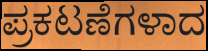
ಪ್ರಕಟಣೆಗಳಾದ